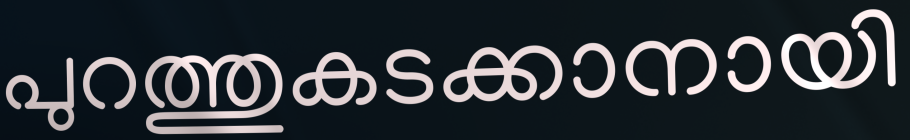
പുറത്തുകടക്കാനായി